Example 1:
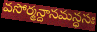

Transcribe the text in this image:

వసోర్మన్దానమన్ధసః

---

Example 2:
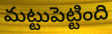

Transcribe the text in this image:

మట్టుపెట్టింది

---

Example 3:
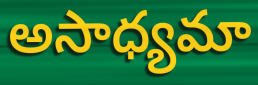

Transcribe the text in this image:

అసాధ్యమా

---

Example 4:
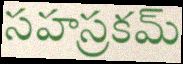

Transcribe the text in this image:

సహస్రకమ్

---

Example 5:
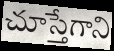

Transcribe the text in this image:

చూస్తేగాని